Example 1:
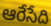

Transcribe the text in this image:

ఆరేసేది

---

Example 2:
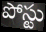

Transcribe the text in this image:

పోస్టు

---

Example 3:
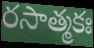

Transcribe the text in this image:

రసాత్మకః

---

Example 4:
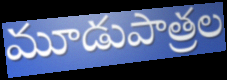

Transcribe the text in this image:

మూడుపాత్రల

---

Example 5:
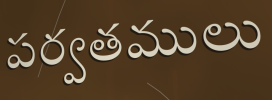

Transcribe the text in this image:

పర్వతములు